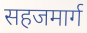
सहजमार्ग